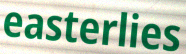
easterlies